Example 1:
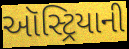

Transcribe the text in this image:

ઑસ્ટ્રિયાની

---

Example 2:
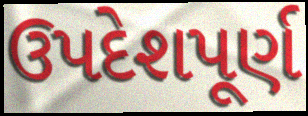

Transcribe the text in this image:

ઉપદેશપૂર્ણ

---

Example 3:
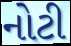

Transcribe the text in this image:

નોટી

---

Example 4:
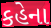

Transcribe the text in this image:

કહેના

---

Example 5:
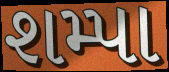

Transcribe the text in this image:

શમ્પા